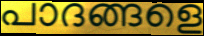
പാദങ്ങളെ